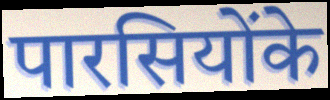
पारसियोंके